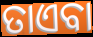
ତାଏବା